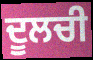
ਦੂਲਚੀ